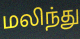
மலிந்து